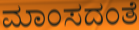
ಮಾಂಸದಂತೆ